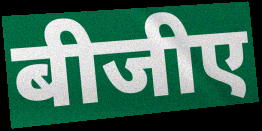
बीजीए